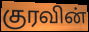
குரவின்